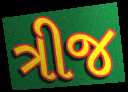
ત્રીજ